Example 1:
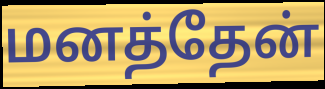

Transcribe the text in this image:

மனத்தேன்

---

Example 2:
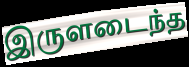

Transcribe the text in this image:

இருளடைந்த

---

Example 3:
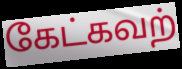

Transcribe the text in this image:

கேட்கவற்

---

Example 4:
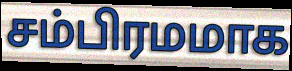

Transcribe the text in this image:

சம்பிரமமாக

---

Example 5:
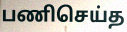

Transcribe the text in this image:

பணிசெய்த